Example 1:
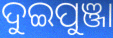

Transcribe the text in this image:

ଦୁଇପୁଞ୍ଜା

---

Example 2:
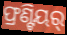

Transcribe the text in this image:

ଫ୍ରଣ୍ଟିୟର୍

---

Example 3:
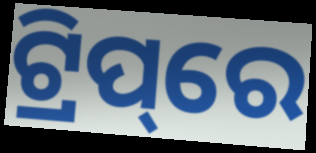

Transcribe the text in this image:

ଟ୍ରିପ୍‌ରେ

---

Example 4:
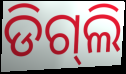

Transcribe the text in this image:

ଡିଗ୍‌ଲି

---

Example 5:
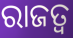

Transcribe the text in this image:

ରାଜତ୍ଵ